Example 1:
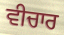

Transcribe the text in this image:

ਵੀਚਾਰ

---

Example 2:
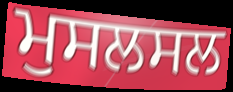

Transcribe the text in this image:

ਮੁਸਲਸਲ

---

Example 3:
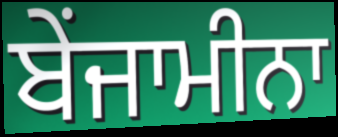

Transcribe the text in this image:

ਬੇਂਜਾਮੀਨਾ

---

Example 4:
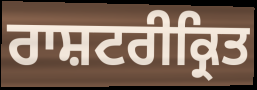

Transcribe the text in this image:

ਰਾਸ਼ਟਰੀਕ੍ਰਿਤ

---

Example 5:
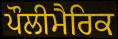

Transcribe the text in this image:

ਪੌਲੀਮੈਰਿਕ